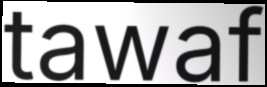
tawaf